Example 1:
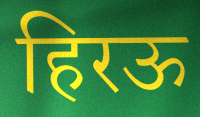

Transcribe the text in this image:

हिरऊ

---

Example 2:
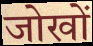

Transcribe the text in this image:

जोखों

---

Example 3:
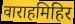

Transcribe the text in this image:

वाराहमिहिर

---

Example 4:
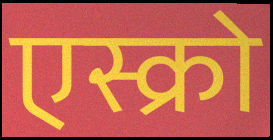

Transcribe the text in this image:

एस्क्रो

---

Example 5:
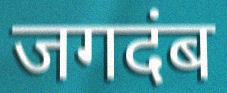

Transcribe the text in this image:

जगदंब